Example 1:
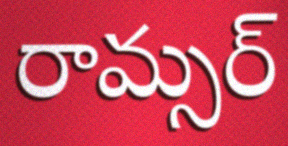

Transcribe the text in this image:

రామ్సర్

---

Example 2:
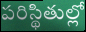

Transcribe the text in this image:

పరిస్థితుల్లో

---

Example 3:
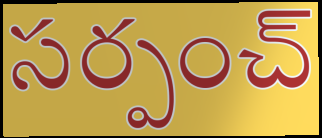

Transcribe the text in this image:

సర్పంచ్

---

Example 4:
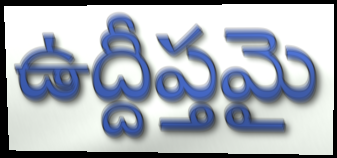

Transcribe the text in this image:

ఉద్దీప్తమై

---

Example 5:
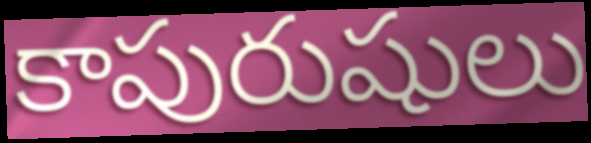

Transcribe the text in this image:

కాపురుషులు